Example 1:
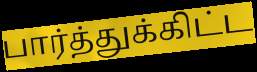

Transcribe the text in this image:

பார்த்துக்கிட்ட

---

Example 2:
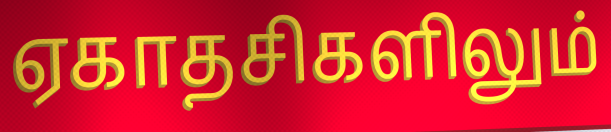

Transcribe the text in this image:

ஏகாதசிகளிலும்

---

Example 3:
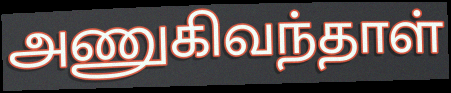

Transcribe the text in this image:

அணுகிவந்தாள்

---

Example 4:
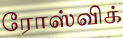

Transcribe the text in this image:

ரோஸ்விக்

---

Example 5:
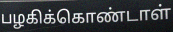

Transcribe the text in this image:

பழகிக்கொண்டாள்